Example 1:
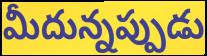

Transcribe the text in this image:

మీదున్నప్పుడు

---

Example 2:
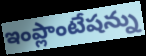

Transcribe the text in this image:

ఇంప్లాంటేషన్ను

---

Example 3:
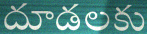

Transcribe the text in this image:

దూడలకు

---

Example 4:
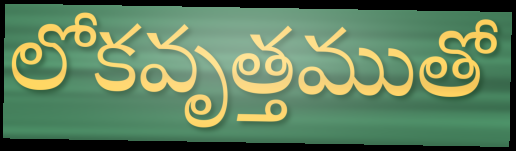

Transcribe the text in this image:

లోకవృత్తముతో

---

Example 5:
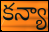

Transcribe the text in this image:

కన్యా